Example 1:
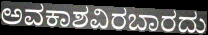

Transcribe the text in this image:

ಅವಕಾಶವಿರಬಾರದು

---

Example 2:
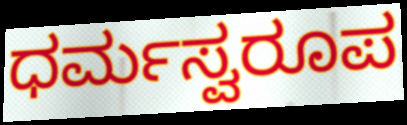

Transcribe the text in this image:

ಧರ್ಮಸ್ವರೂಪ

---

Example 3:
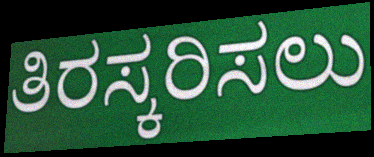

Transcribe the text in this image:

ತಿರಸ್ಕರಿಸಲು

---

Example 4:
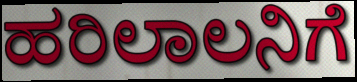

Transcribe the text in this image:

ಹರಿಲಾಲನಿಗೆ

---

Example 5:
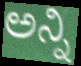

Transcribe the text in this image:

ಅನ್ನಿ